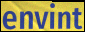
envint